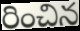
రించిన